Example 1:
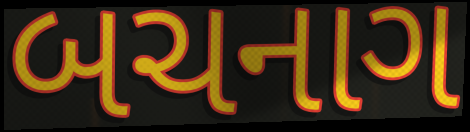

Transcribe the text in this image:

બચનાગ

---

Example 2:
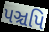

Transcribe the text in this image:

પઞ્ચપિ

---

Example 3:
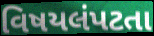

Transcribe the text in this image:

વિષયલંપટતા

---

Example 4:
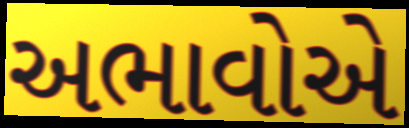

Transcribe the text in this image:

અભાવોએ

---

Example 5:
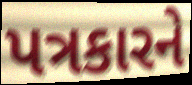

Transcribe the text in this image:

પત્રકારને